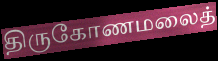
திருகோணமலைத்